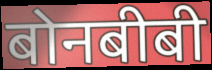
बोनबीबी